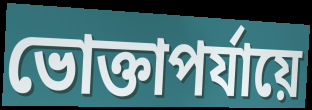
ভোক্তাপর্যায়ে